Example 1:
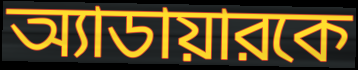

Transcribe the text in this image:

অ্যাডায়ারকে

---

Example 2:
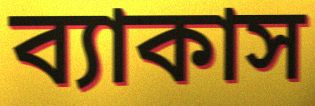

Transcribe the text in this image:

ব্যাকাস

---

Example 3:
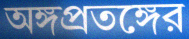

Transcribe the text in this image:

অঙ্গপ্রতঙ্গের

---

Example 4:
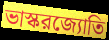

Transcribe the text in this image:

ভাস্করজ্যোতি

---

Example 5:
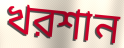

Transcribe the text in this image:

খরশান